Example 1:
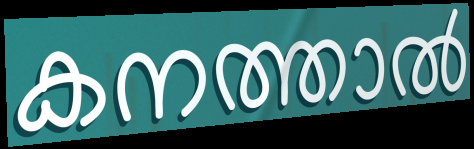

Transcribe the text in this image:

കനത്താൽ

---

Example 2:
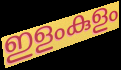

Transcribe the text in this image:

ഇളംകുളം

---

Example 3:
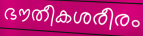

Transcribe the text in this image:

ഭൗതീകശരീരം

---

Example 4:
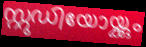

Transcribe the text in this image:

സ്റ്റുഡിയോയ്ക്കും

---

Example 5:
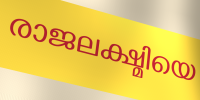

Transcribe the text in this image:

രാജലക്ഷ്മിയെ